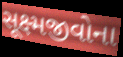
સૂક્ષ્મજીવોના